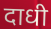
दाधी